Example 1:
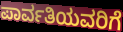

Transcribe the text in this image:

ಪಾರ್ವತಿಯವರಿಗೆ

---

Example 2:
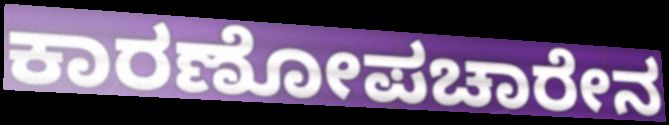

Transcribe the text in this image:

ಕಾರಣೋಪಚಾರೇನ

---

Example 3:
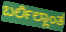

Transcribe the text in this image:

ಬರ್ಲಿಲ್ಲಾಂತ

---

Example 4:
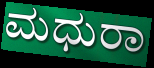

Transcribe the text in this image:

ಮಧುರಾ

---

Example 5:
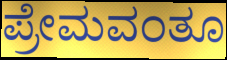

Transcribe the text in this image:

ಪ್ರೇಮವಂತೂ